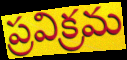
ప్రవిక్రమ